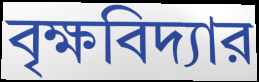
বৃক্ষবিদ্যার